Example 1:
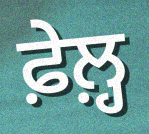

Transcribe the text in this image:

ਫ਼ੇਲ਼੍ਹ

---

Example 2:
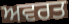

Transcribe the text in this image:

ਅਵਰਤ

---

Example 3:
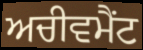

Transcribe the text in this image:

ਅਚੀਵਮੈਂਟ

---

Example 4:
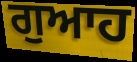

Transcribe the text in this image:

ਗੁਆਹ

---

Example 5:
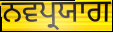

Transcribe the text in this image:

ਨਵਪ੍ਰਯਾਗ